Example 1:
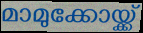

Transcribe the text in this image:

മാമുക്കോയ്ക്ക്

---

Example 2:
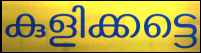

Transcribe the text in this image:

കുളിക്കട്ടെ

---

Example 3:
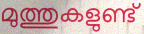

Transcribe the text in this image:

മുത്തുകളുണ്ട്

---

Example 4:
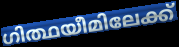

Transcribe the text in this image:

ഗിത്ഥയീമിലേക്ക്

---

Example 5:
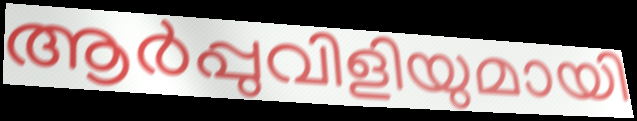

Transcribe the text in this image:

ആർപ്പുവിളിയുമായി